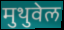
मुथुवेल